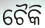
ଚୈକି